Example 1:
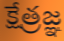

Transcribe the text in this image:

క్షేత్రజ్ఞ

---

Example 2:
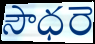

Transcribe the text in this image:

సౌధరె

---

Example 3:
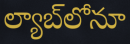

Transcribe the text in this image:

ల్యాబ్‌లోనూ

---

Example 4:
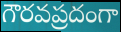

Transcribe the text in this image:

గౌరవప్రదంగా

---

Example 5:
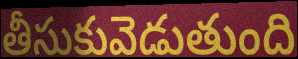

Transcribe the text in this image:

తీసుకువెడుతుంది